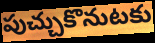
పుచ్చుకొనుటకు